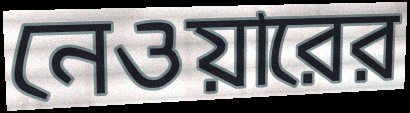
নেওয়ারের